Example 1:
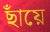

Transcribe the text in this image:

ছাঁয়ে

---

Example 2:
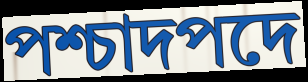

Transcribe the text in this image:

পশ্চাদপদে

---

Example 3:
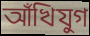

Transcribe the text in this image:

আঁখিযুগ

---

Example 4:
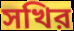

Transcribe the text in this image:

সখির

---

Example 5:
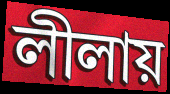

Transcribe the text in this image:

লীলায়